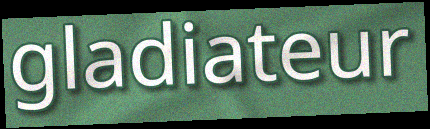
gladiateur